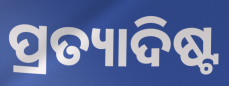
ପ୍ରତ୍ୟାଦିଷ୍ଟ